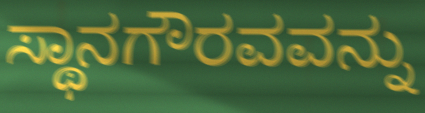
ಸ್ಥಾನಗೌರವವನ್ನು